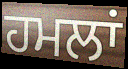
ਹਮਲਾਂ